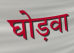
घोड़वा